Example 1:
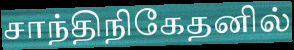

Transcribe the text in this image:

சாந்திநிகேதனில்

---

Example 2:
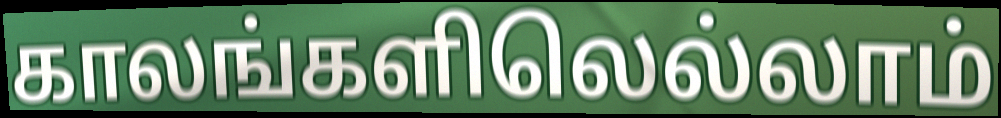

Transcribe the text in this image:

காலங்களிலெல்லாம்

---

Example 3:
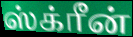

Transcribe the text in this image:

ஸ்க்ரீன்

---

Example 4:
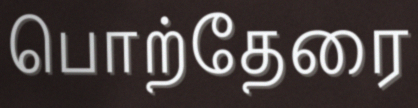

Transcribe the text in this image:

பொற்தேரை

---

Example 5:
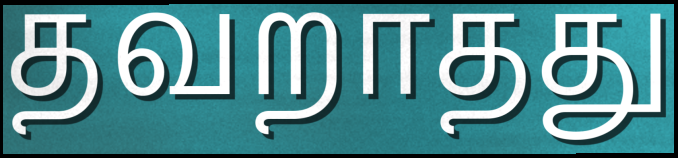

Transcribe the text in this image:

தவறாதது